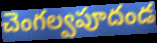
చెంగల్వపూదండ